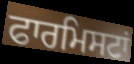
ਫਾਰਮਿਸਟਾਂ